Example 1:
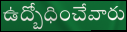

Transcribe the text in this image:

ఉద్బోధించేవారు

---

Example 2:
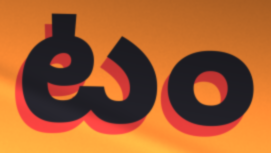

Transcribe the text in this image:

టం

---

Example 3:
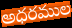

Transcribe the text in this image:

అధరముల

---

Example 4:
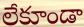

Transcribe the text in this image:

లేకూండా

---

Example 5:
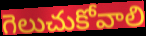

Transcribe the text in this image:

గెలుచుకోవాలి